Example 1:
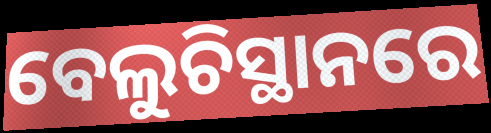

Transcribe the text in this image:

ବେଲୁଚିସ୍ଥାନରେ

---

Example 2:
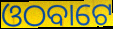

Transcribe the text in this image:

ଓଠବାଟେ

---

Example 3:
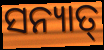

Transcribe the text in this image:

ସନ୍ୟାତ୍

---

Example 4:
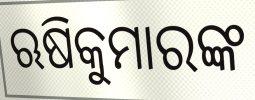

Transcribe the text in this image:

ଋଷିକୁମାରଙ୍କ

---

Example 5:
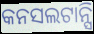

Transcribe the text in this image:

କନସଲଟାନ୍ସି